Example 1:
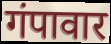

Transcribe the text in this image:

गंपावार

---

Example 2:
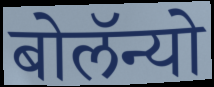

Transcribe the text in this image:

बोलॅन्यो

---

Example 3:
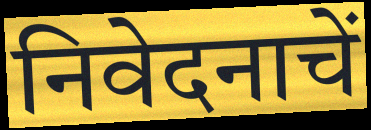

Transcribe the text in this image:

निवेदनाचें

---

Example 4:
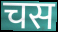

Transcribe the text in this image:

चस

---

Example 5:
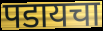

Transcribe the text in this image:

पडायचा